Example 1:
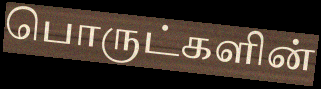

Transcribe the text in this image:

பொருட்களின்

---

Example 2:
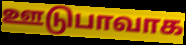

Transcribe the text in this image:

ஊடுபாவாக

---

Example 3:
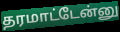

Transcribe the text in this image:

தரமாட்டேன்னு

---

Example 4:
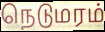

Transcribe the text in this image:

நெடுமரம்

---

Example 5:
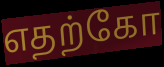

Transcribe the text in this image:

எதற்கோ